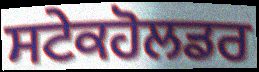
ਸਟੇਕਹੋਲਡਰ